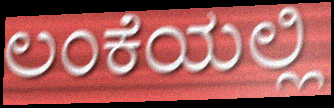
ಲಂಕೆಯಲ್ಲಿ